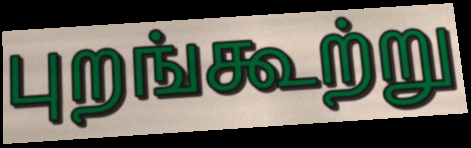
புறங்கூற்று